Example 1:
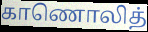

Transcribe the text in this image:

காணொலித்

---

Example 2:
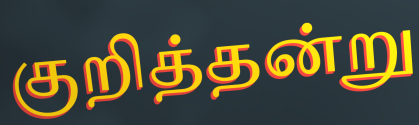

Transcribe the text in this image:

குறித்தன்று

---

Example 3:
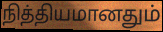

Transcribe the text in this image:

நித்தியமானதும்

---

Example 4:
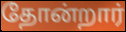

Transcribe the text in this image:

தோன்றார்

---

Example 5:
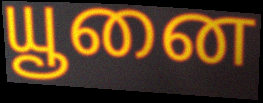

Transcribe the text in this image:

யூனை